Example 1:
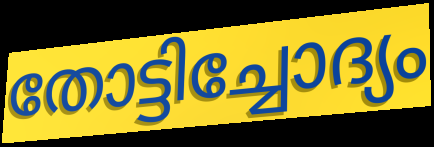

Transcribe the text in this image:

തോട്ടിച്ചോദ്യം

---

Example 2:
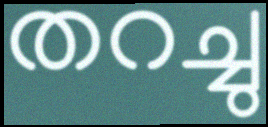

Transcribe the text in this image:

തറച്ചു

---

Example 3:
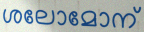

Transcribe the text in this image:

ശലോമോന്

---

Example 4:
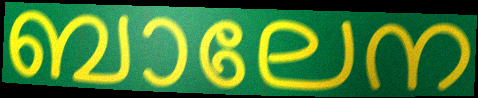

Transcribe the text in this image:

ബാലേന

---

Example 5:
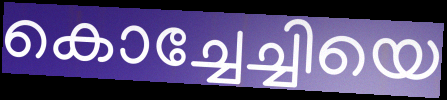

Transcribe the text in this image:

കൊച്ചേച്ചിയെ